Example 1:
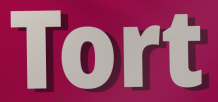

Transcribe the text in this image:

Tort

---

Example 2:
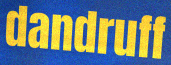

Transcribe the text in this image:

dandruff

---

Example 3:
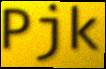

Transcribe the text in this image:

Pjk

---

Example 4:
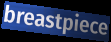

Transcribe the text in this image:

breastpiece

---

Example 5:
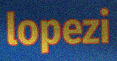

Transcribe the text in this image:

lopezi